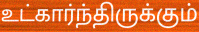
உட்கார்ந்திருக்கும்